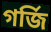
গৰ্জি